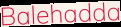
Balehadda